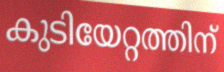
കുടിയേറ്റത്തിന്